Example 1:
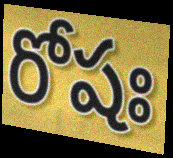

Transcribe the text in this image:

రోషః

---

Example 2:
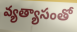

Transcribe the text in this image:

వ్యత్యాసంతో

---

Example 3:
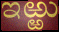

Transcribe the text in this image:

ఇఱ్ఱు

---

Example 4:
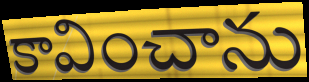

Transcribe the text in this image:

కావించాను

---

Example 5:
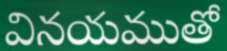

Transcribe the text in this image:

వినయముతో